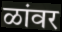
ळांवर